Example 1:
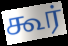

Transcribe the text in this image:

கூர்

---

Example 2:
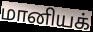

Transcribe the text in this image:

மானியக்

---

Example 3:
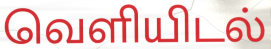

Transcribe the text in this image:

வெளியிடல்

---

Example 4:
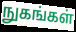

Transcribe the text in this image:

நுகங்கள்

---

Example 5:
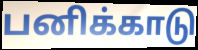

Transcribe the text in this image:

பனிக்காடு